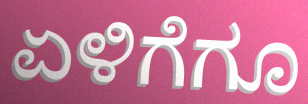
ಏಳಿಗೆಗೂ